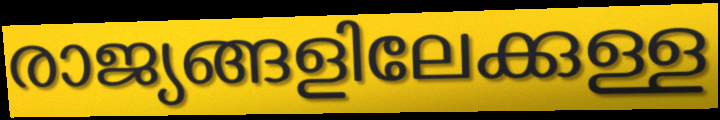
രാജ്യങ്ങളിലേക്കുള്ള